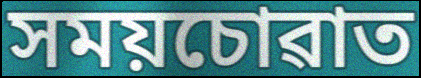
সময়চোৱাত